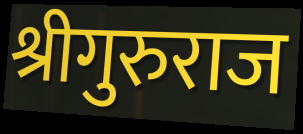
श्रीगुरुराज